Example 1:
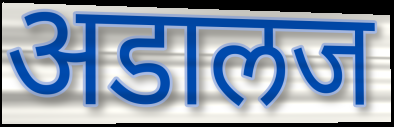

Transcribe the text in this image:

अडालज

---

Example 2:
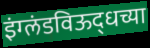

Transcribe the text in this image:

इंग्लंडविऊद्धच्या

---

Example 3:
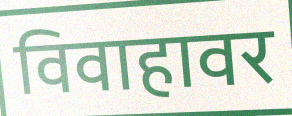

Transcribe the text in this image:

विवाहावर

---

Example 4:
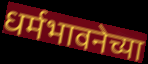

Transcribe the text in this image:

धर्मभावनेच्या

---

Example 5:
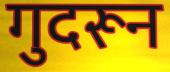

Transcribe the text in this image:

गुदरून